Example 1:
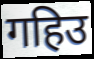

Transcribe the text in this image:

गहिउ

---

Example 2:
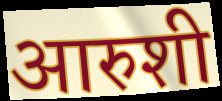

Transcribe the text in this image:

आरुशी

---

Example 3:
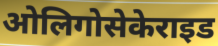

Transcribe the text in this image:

ओलिगोसेकेराइड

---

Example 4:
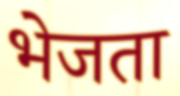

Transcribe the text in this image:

भेजता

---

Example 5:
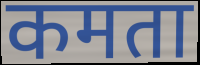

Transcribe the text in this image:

कमता